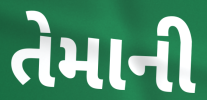
તેમાની